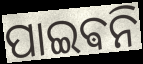
ପାଇଵନି